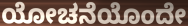
ಯೋಚನೆಯೊಂದೇ